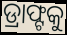
ଡ୍ରାଫ୍ଟକୁ